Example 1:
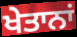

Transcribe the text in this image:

ਖੇਤਾਨਾਂ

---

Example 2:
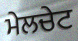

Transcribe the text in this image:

ਮੇਲਚੇਟ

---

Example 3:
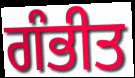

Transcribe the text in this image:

ਗੰਭੀਤ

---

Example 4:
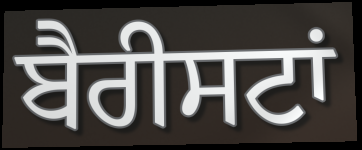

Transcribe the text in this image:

ਬੈਰੀਸਟਾਂ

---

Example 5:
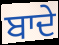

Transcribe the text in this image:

ਬਾਦੇ